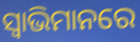
ସ୍ୱାଭିମାନରେ